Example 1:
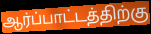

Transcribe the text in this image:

ஆர்ப்பாட்டத்திற்கு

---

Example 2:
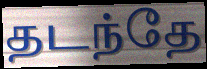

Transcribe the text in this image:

தடந்தே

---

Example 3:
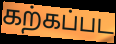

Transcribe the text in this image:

கற்கப்பட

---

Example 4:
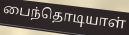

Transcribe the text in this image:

பைந்தொடியாள்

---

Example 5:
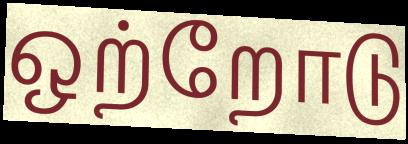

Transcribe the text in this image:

ஒற்றோடு